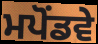
ਮਪੋਂਡਵੇ